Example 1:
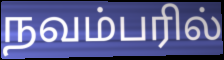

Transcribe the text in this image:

நவம்பரில்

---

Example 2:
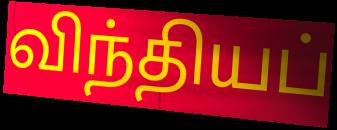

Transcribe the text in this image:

விந்தியப்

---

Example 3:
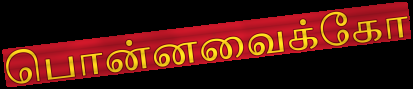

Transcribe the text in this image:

பொன்னவைக்கோ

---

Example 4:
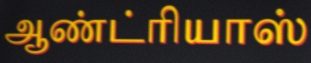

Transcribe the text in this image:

ஆண்ட்ரியாஸ்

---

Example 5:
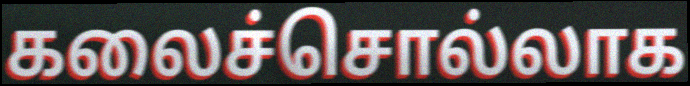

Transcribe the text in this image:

கலைச்சொல்லாக